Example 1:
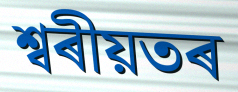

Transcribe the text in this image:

শ্বৰীয়তৰ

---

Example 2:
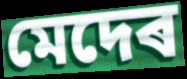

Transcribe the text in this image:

মেদেৰ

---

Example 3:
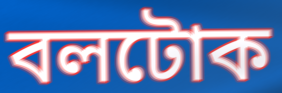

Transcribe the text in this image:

বলটোক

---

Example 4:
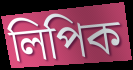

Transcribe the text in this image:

লিপিক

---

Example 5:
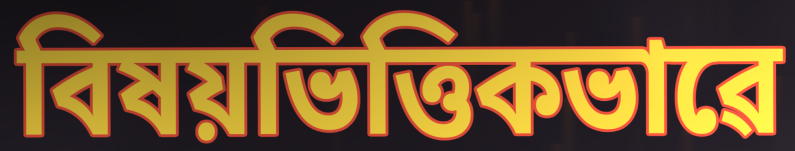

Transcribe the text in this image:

বিষয়ভিত্তিকভাৱে